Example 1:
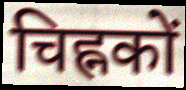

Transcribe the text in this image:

चिह्नकों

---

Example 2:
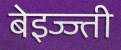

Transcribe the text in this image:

बेइज्ज्ती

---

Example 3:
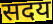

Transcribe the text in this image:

सदय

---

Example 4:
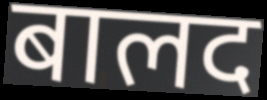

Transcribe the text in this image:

बालद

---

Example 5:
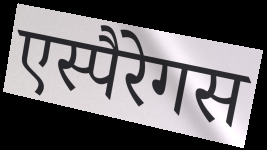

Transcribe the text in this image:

एस्पैरेगस